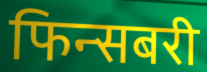
फिन्सबरी